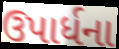
ઉપાર્ધના